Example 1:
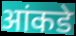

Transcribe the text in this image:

आंकडे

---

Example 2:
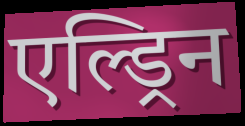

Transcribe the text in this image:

एल्ड्रिन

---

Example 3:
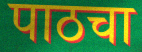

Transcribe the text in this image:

पाठचा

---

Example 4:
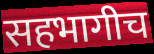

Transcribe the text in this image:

सहभागीच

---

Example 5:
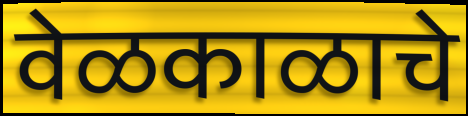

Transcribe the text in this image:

वेळकाळाचे